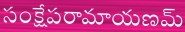
సంక్షేపరామాయణమ్